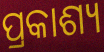
ପ୍ରକାଶ୍ୟ